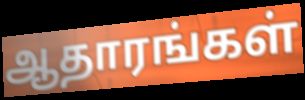
ஆதாரங்கள்